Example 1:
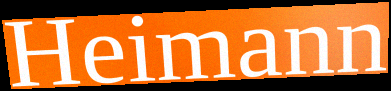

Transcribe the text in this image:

Heimann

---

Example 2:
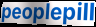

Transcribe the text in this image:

peoplepill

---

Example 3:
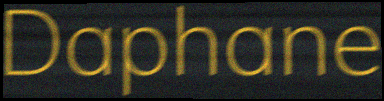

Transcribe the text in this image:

Daphane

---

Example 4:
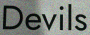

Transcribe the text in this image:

Devils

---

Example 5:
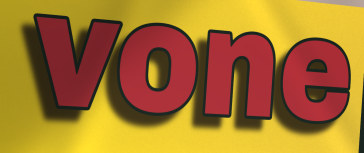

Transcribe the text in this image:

vone